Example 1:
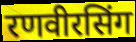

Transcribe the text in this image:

रणवीरसिंग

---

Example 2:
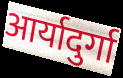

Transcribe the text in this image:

आर्यादुर्गा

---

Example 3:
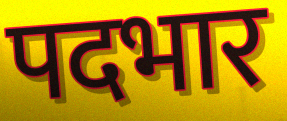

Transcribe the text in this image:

पदभार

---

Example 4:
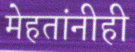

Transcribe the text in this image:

मेहतांनीही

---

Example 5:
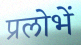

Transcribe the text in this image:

प्रलोभें